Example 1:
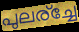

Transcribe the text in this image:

പുലര്ച്ചേ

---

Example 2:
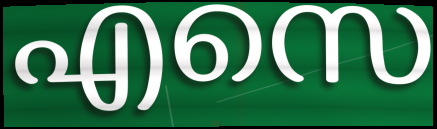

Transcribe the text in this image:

എസെ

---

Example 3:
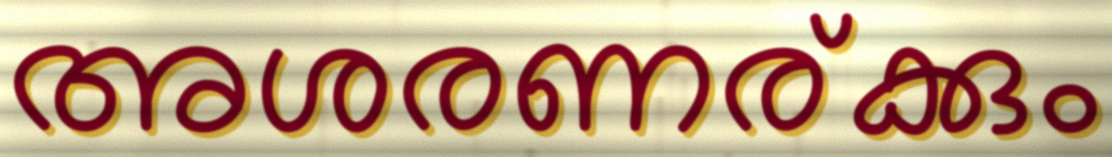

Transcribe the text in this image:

അശരണര്ക്കും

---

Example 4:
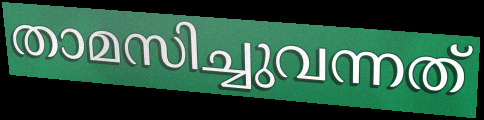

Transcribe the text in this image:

താമസിച്ചുവന്നത്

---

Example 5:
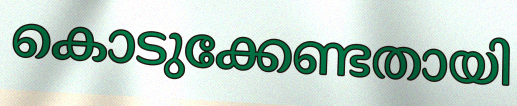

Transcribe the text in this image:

കൊടുക്കേണ്ടതായി